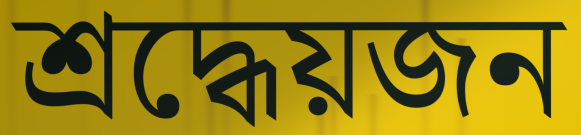
শ্রদ্ধেয়জন